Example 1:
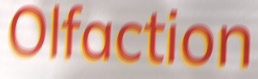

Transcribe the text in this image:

Olfaction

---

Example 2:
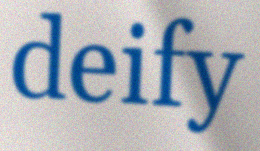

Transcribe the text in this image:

deify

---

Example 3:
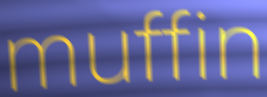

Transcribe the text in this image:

muffin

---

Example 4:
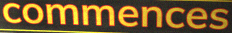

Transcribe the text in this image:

commences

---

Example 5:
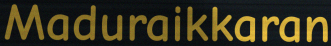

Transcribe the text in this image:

Maduraikkaran